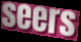
seers